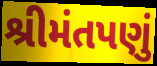
શ્રીમંતપણું